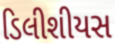
ડિલીશીયસ